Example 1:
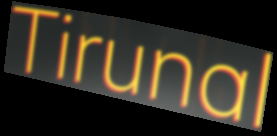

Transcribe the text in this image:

Tirunal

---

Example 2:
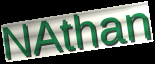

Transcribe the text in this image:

NAthan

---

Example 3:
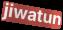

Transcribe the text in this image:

jiwatun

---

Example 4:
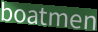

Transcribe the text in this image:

boatmen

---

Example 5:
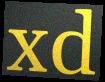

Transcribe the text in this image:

xd